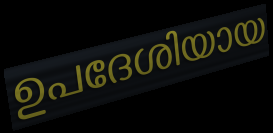
ഉപദേശിയായ